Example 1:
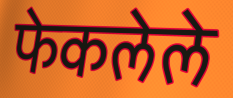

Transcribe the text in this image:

फेकलेले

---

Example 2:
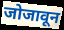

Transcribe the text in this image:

जोजावून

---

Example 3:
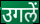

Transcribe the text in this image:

उगलें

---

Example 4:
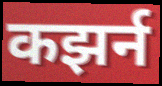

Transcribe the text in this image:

कझर्न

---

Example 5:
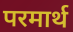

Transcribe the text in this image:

परमार्थ